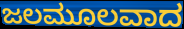
ಜಲಮೂಲವಾದ